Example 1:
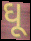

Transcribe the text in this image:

ઘૂ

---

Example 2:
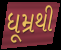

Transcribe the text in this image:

ધૂમ્રથી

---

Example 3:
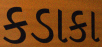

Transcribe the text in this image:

કડાકા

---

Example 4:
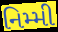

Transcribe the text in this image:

નિમ્મી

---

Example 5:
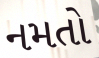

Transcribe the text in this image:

નમતો